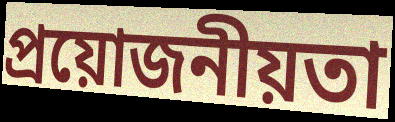
প্রয়োজনীয়তা